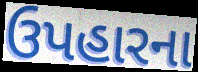
ઉપહારના